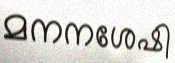
മനനശേഷി